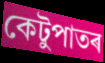
কেটুপাতৰ